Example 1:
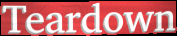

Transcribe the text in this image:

Teardown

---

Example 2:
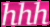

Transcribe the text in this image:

hhh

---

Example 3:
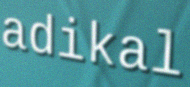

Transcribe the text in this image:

adikal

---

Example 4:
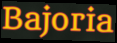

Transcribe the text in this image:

Bajoria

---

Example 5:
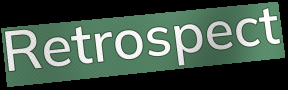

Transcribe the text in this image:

Retrospect